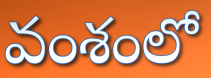
వంశంలో